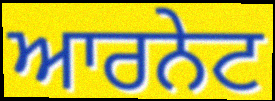
ਆਰਨੇਟ